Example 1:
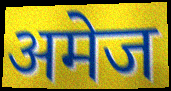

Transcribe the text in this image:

अमेज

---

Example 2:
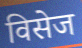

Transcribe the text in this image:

विसेज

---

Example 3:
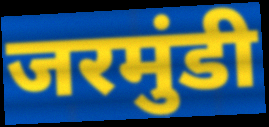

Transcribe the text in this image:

जरमुंडी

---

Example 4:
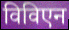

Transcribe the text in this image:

विविएन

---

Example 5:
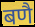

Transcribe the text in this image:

बणै